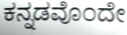
ಕನ್ನಡವೊಂದೇ